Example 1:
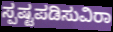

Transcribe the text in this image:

ಸ್ಪಷ್ಟಪಡಿಸುವಿರಾ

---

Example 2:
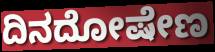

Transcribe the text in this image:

ದಿನದೋಷೇಣ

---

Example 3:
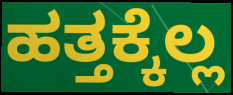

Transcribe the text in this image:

ಹತ್ತಕ್ಕೆಲ್ಲ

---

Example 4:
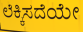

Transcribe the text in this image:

ಲೆಕ್ಕಿಸದೆಯೇ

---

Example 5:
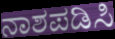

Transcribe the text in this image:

ನಾಶಪಡಿಸಿ